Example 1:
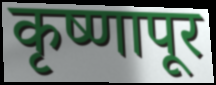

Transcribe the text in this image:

कृष्णापूर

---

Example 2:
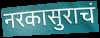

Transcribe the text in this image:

नरकासुराचं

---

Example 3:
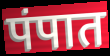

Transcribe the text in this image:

पंपात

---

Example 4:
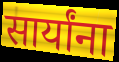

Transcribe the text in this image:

सार्यांना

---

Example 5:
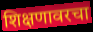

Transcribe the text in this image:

शिक्षणावरचा